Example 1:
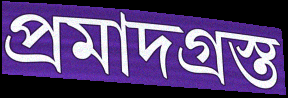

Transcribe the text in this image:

প্রমাদগ্রস্ত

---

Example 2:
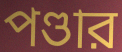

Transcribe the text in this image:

পণ্ডার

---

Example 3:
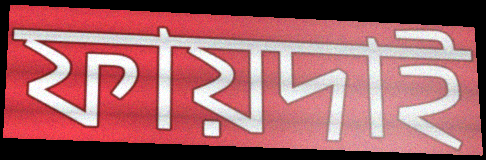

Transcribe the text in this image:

ফায়দাই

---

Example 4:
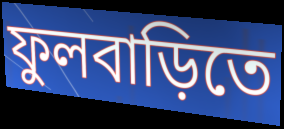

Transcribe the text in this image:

ফুলবাড়িতে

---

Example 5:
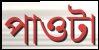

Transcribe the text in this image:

পাওটা